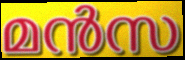
മൻസ